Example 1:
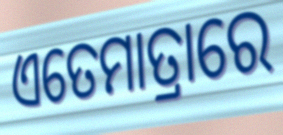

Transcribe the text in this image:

ଏତେମାତ୍ରାରେ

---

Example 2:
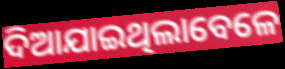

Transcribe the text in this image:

ଦିଆଯାଇଥିଲାବେଳେ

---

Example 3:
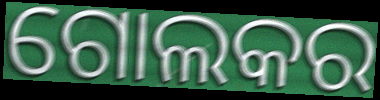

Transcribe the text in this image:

ଗୋଲକର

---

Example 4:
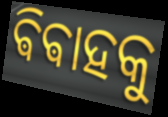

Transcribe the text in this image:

ଵିଵାହକୁ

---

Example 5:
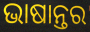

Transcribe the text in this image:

ଭାଷାନ୍ତର